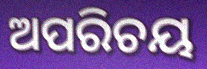
ଅପରିଚୟ